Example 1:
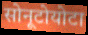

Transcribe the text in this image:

सोनूटोयोटा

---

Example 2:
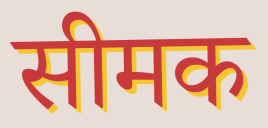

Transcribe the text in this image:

सीमक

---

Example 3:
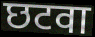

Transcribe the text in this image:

छटवा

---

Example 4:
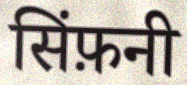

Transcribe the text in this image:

सिंफ़नी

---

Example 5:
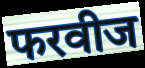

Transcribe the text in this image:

फरवीज